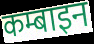
कम्बाइन